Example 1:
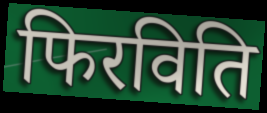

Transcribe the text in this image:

फिरविति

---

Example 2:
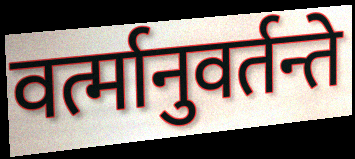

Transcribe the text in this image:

वर्त्मानुवर्तन्ते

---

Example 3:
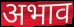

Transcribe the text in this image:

अभाव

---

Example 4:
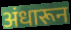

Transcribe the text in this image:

अंधारून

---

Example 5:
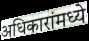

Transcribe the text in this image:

अधिकारांमध्ये